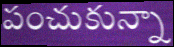
పంచుకున్నా